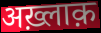
अख़्लाक़